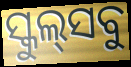
ସ୍କୁଲ୍‍ସବୁ